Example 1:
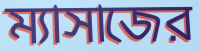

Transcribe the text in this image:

ম্যাসাজের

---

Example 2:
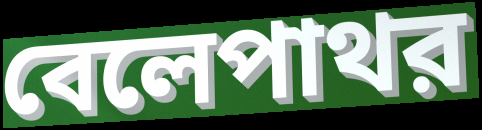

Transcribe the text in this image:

বেলেপাথর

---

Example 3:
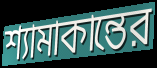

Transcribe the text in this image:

শ্যামাকান্তের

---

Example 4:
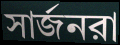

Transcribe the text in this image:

সার্জনরা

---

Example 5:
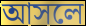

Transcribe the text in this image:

আসলে